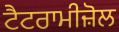
ਟੈਟਰਾਮੀਜ਼ੋਲ